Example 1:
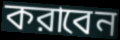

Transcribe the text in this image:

করাবেন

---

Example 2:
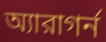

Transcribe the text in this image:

অ্যারাগর্ন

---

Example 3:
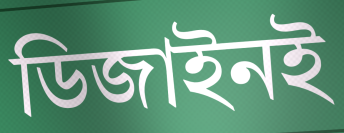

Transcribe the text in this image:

ডিজাইনই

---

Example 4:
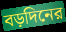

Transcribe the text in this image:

বড়দিনের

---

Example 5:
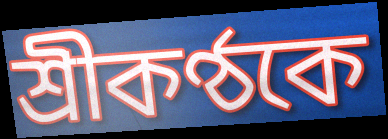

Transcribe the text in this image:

শ্রীকণ্ঠকে